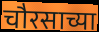
चौरसाच्या